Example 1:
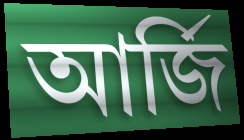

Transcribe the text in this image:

আৰ্জি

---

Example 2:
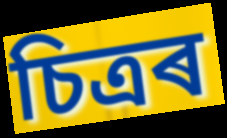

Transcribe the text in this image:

চিত্ৰৰ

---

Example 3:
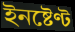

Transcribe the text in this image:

ইনষ্টেণ্ট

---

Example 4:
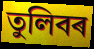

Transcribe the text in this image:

তুলিবৰ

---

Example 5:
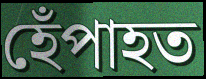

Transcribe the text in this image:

হেঁপাহত